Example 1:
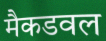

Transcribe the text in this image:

मैकडवल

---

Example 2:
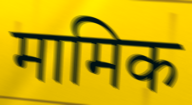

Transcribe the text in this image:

मामिक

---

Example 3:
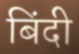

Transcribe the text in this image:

बिंदी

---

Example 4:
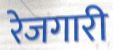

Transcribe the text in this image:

रेजगारी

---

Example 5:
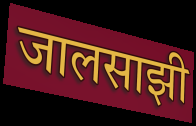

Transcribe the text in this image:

जालसाझी